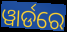
ୱାର୍ଡରେ